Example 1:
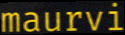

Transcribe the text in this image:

maurvi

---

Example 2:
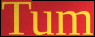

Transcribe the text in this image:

Tum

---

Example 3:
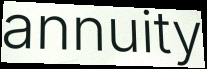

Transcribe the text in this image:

annuity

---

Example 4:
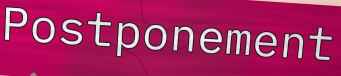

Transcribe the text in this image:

Postponement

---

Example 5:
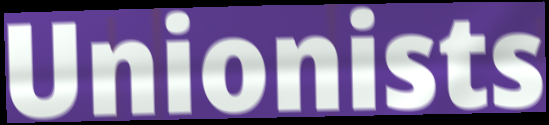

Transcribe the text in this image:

Unionists